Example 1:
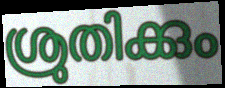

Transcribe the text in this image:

ശ്രുതിക്കും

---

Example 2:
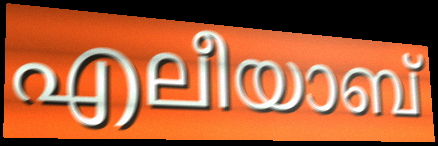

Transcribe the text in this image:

എലീയാബ്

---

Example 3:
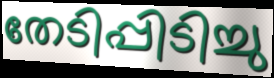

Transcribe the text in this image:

തേടിപ്പിടിച്ചു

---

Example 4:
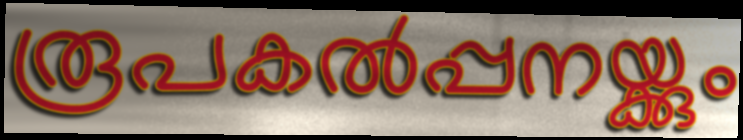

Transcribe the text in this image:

രൂപകൽപ്പനയ്ക്കും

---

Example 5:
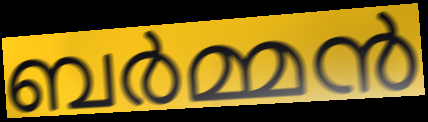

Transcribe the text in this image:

ബർമ്മൻ